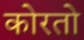
कोरतो